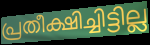
പ്രതീക്ഷിച്ചിട്ടില്ല